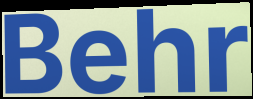
Behr